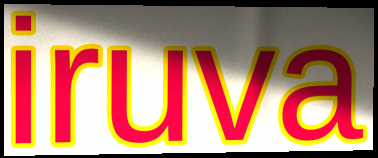
iruva